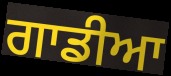
ਗਾਡੀਆ